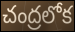
చంద్రలోక